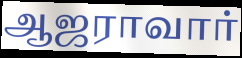
ஆஜராவார்